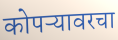
कोपऱ्यावरचा